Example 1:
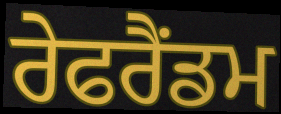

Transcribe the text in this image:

ਰੇਫਰੈਂਡਮ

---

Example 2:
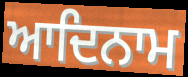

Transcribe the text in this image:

ਆਦਿਨਾਮ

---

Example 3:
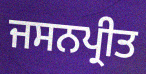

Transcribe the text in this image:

ਜਸਨਪ੍ਰੀਤ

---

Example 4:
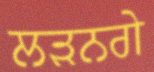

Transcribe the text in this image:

ਲੜਨਗੇ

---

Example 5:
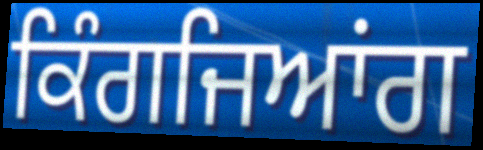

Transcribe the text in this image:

ਕਿੰਗਜਿਆਂਗ